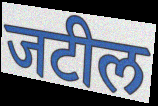
जटील